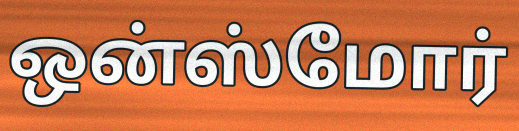
ஒன்ஸ்மோர்